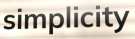
simplicity